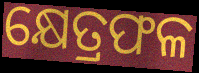
କ୍ଷେତ୍ରଫଳ